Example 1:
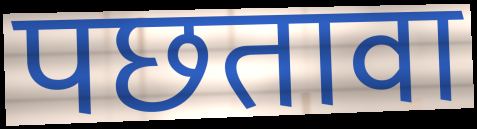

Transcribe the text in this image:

पछतावा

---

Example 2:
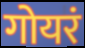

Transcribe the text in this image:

गोयरं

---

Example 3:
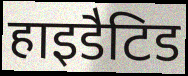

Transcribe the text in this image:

हाइडैटिड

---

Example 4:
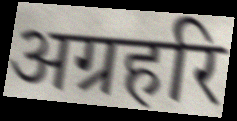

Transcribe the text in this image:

अग्रहरि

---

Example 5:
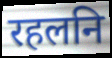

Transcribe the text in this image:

रहलनि